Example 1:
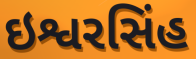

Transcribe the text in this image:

ઇશ્વરસિંહ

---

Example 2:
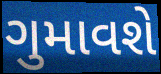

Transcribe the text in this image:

ગુમાવશે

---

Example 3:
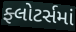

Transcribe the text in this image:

ફ્લોટર્સમાં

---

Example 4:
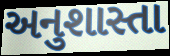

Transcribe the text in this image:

અનુશાસ્તા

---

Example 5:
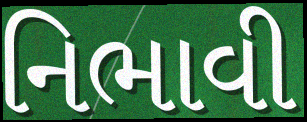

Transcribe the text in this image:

નિભાવી